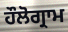
ਹੌਲੋਗ੍ਰਾਮ